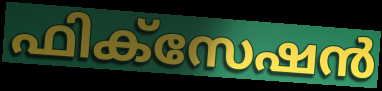
ഫിക്സേഷൻ